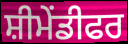
ਸ਼ੀਮੇਂਡੀਫਰ